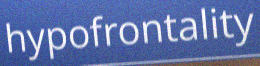
hypofrontality